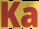
Ka